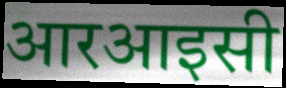
आरआइसी